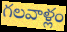
గలవాళ్లం